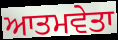
ਆਤਮਵੇਤਾ